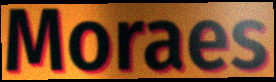
Moraes